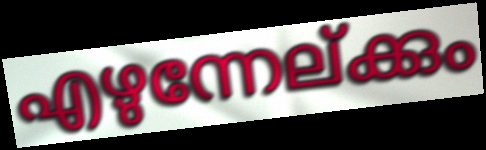
എഴുന്നേല്ക്കും